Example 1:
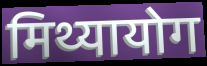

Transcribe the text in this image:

मिथ्यायोग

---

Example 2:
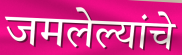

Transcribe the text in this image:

जमलेल्यांचे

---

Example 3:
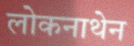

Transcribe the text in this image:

लोकनाथेन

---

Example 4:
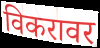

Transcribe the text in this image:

विकरावर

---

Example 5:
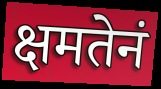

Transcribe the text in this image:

क्षमतेनं